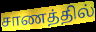
சாணத்தில்